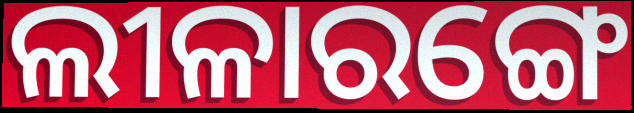
ଲୀଳାରଙ୍ଗେ